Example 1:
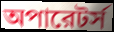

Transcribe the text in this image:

অপারেটর্স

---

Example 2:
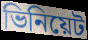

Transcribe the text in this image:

ভিনিয়েট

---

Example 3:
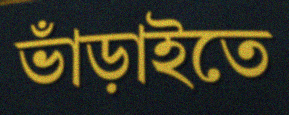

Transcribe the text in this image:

ভাঁড়াইতে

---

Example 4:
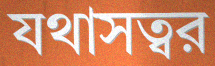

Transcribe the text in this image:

যথাসত্বর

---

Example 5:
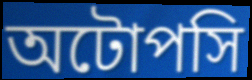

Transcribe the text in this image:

অটোপসি